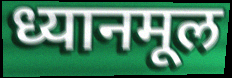
ध्यानमूल